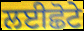
ਲਈਛੋਟੇ